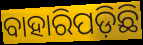
ବାହାରିପଡ଼ିଛି